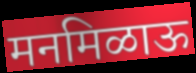
मनमिळाऊ